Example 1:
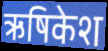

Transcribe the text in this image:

ऋषिकेश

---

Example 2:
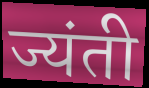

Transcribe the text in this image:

ज्यंती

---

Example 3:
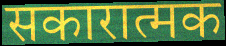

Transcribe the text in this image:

सकारात्मक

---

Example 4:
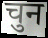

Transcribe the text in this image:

चुन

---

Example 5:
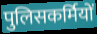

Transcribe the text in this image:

पुलिसकर्मियों